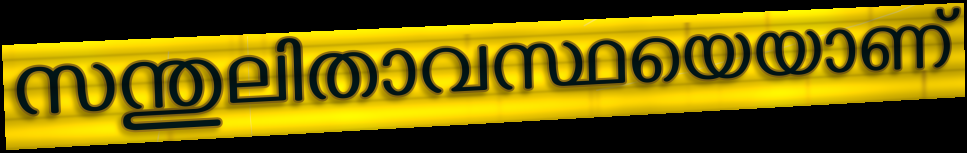
സന്തുലിതാവസ്ഥയെയാണ്